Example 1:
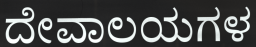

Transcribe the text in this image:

ದೇವಾಲಯಗಳ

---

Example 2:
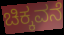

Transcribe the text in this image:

ಚಿಕ್ಕವನೆ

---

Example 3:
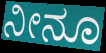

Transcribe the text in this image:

ನೀನೂ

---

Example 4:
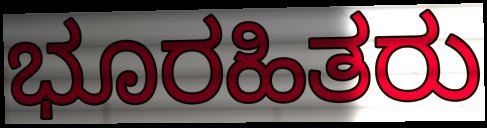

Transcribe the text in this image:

ಭೂರಹಿತರು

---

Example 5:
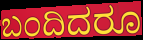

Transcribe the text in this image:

ಬಂದಿದರೂ